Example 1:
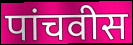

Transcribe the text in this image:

पांचवीस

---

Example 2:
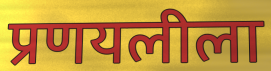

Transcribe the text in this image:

प्रणयलीला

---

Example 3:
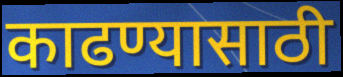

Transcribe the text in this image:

काढण्यासाठी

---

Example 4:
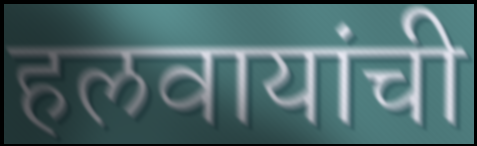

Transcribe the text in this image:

हलवायांची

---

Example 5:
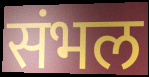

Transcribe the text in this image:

संभल